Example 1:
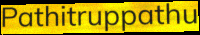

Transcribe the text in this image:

Pathitruppathu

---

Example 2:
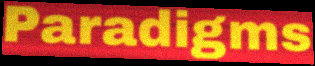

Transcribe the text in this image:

Paradigms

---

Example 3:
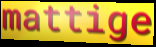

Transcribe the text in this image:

mattige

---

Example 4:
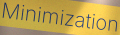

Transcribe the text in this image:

Minimization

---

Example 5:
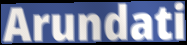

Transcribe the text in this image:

Arundati